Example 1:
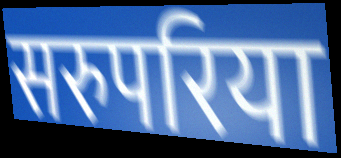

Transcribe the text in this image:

सरुपरिया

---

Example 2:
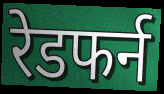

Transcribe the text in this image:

रेडफर्न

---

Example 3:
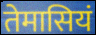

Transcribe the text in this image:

तेमासियं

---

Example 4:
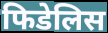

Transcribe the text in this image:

फिडेलिस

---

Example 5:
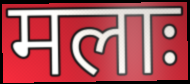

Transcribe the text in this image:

मलाः